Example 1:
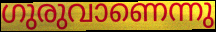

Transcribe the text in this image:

ഗുരുവാണെന്നു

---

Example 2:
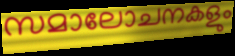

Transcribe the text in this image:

സമാലോചനകളും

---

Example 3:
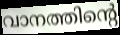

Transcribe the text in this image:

വാനത്തിന്റെ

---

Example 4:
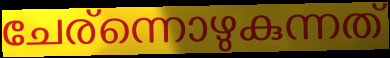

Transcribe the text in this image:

ചേര്ന്നൊഴുകുന്നത്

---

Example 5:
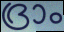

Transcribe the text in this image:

ദ്രാം